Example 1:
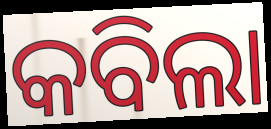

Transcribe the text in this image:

କବିଲା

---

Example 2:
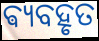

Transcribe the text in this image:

ଵ୍ୟବହୃତ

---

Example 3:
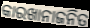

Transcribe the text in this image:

କାରଖାନାଜନିତ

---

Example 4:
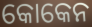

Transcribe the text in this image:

କୋକେନ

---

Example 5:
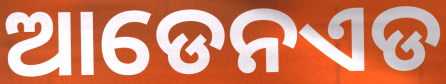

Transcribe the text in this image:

ଆଡେନଏଡ